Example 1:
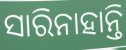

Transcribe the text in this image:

ସାରିନାହାନ୍ତି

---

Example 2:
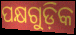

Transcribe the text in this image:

ପକ୍ଷଗୁଡ଼ିକ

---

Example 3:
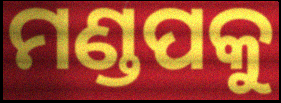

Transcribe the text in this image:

ମଣ୍ଡପକୁ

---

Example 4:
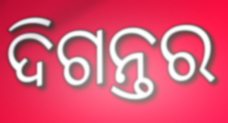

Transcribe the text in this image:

ଦିଗନ୍ତର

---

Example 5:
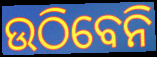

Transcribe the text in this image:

ଉଠିବେନି